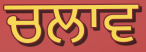
ਚਲਾਵ